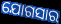
ଯୋଗସାର